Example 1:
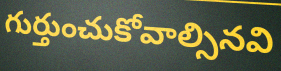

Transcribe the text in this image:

గుర్తుంచుకోవాల్సినవి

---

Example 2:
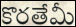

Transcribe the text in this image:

కొరతేమీ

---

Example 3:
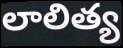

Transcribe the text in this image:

లాలిత్య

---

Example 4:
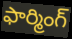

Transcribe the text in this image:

ఫార్మింగ్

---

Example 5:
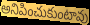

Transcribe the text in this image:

అనిపించుకుంటావు